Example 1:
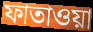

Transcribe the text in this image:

ফাতাওয়া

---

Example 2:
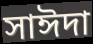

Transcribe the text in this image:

সাঈদা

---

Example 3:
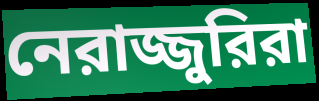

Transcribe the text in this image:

নেরাজ্জুরিরা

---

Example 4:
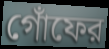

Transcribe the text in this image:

গোঁফের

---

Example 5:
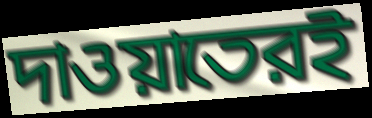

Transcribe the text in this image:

দাওয়াতেরই